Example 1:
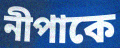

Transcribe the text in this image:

নীপাকে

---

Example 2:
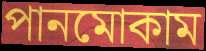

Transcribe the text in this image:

পানমোকাম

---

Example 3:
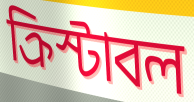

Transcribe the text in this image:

ক্রিস্টাবল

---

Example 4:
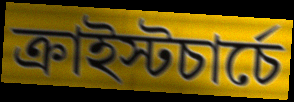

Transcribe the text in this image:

ক্রাইস্টচার্চে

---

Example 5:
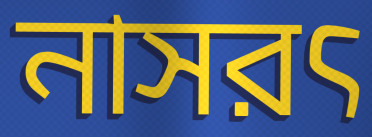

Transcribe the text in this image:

নাসরৎ